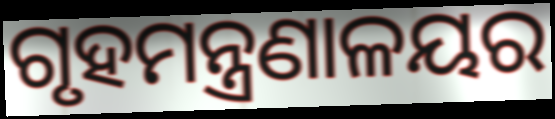
ଗୃହମନ୍ତ୍ରଣାଳୟର